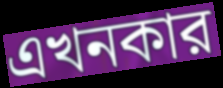
এখনকার